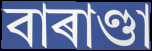
বাৰাণ্ডা